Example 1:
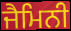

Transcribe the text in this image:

ਜੈਮਿਨੀ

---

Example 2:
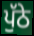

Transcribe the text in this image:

ਪੁੱਠੇ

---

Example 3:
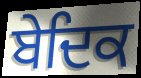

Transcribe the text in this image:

ਬੇਦਿਕ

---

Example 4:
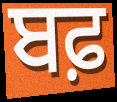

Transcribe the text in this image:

ਬਫ਼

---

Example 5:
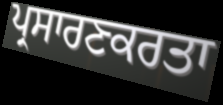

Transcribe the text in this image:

ਪ੍ਰਸਾਰਣਕਰਤਾ